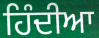
ਹਿੰਦੀਆ